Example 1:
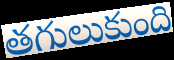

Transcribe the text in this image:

తగులుకుంది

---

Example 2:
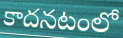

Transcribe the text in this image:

కాదనటంలో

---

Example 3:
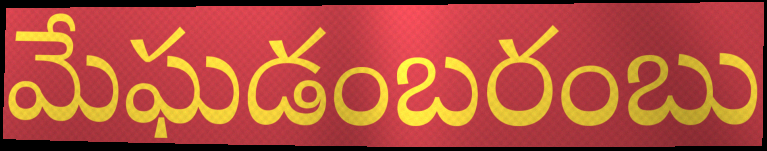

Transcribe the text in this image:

మేఘడంబరంబు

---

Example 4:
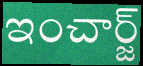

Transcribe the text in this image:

ఇంచార్జ్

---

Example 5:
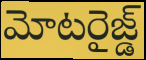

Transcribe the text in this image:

మోటరైజ్డ్